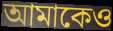
আমাকেও